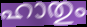
ഹാതും